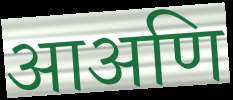
आअणि